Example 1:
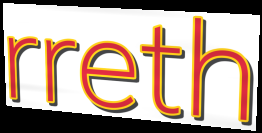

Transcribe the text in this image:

rreth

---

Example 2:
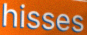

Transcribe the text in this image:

hisses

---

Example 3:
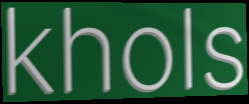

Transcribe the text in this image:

khols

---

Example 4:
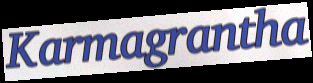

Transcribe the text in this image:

Karmagrantha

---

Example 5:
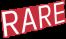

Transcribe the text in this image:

RARE